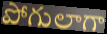
పోగులాగా